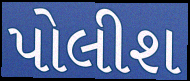
પોલીશ